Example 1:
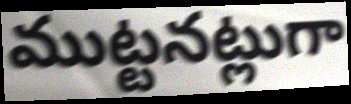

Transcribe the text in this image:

ముట్టనట్లుగా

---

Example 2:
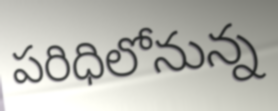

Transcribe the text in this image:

పరిధిలోనున్న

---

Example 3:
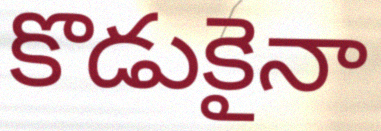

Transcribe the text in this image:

కొడుకైనా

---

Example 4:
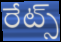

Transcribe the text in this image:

రేట్స్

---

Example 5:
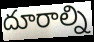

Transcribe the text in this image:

దూరాల్ని